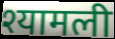
श्यामली